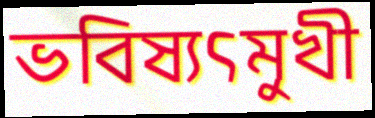
ভবিষ্যৎমুখী